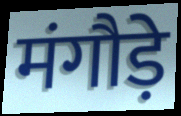
मंगौड़े